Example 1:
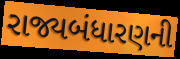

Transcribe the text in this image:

રાજ્યબંધારણની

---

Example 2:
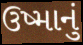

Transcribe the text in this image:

ઉષ્માનું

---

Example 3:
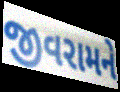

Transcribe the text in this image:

જીવરામને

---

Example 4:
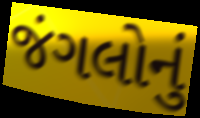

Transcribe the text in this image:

જંગલોનું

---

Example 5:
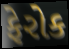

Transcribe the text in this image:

ફેરોક